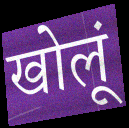
खोलूं